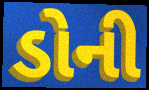
ડોની